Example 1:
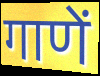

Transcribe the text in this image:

गाणें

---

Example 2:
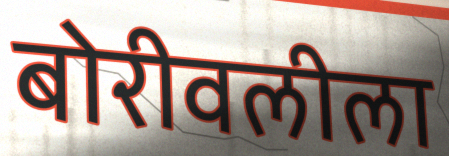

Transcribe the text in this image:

बोरीवलीला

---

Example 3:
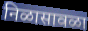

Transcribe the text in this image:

निळासावळा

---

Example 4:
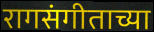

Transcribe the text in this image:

रागसंगीताच्या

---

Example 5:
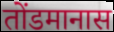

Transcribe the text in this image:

तोंडमानास